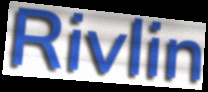
Rivlin